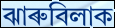
ঝাৰুবিলাক